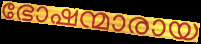
ഭോഷന്മാരായ